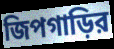
জিপগাড়ির